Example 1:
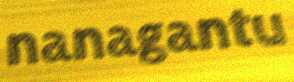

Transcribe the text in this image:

nanagantu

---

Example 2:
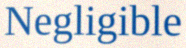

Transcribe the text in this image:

Negligible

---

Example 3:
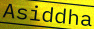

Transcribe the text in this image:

Asiddha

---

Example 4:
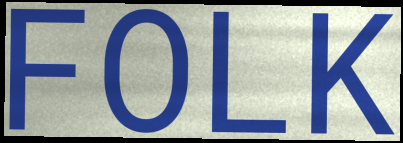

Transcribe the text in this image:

FOLK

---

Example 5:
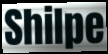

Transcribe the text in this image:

Shilpe